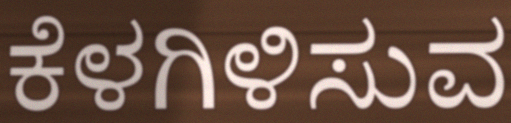
ಕೆಳಗಿಳಿಸುವ